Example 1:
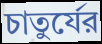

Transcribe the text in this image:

চাতুর্যের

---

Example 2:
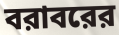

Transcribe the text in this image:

বরাবরের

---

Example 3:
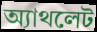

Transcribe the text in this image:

অ্যাথলেট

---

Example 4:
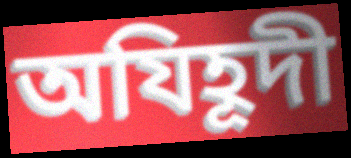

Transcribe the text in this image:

অযিহূদী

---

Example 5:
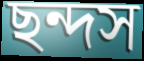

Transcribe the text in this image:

ছন্দস